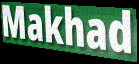
Makhad